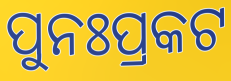
ପୁନଃପ୍ରକଟ